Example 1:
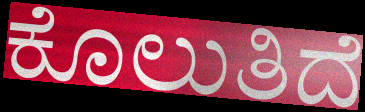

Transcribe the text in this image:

ಕೊಲುತಿದೆ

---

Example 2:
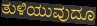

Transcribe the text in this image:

ತುಳಿಯುವುದೂ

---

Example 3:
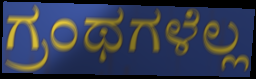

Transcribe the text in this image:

ಗ್ರಂಥಗಳೆಲ್ಲ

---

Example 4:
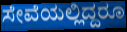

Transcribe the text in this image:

ಸೇವೆಯಲ್ಲಿದ್ದರೂ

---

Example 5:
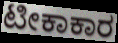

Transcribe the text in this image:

ಟೀಕಾಕಾರ